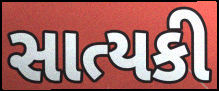
સાત્યકી